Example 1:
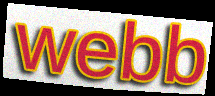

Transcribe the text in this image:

webb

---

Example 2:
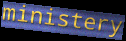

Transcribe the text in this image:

ministery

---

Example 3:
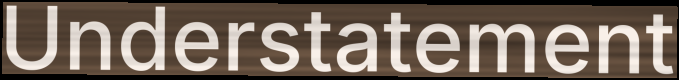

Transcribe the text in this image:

Understatement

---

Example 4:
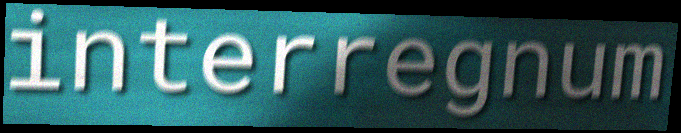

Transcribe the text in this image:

interregnum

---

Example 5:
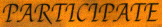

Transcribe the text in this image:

PARTICIPATE